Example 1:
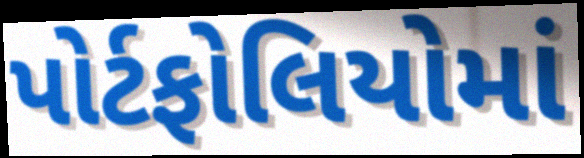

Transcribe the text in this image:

પોર્ટફોલિયોમાં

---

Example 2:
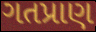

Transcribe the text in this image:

ગતપ્રાણ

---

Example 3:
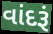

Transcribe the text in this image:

વાંદરૂં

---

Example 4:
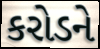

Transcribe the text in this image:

કરોડને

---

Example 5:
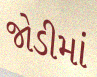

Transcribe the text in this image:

જોડીમાં